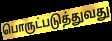
பொருட்படுத்துவது